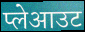
प्लेआउट